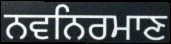
ਨਵਨਿਰਮਾਣ